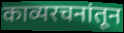
काव्यरचनांतून